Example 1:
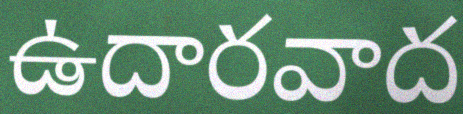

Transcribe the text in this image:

ఉదారవాద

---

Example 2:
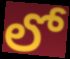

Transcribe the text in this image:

లో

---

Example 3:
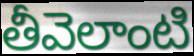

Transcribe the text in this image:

తీవెలాంటి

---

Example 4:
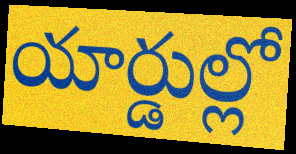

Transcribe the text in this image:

యార్డుల్లో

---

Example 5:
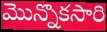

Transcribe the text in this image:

మొన్నొకసారి